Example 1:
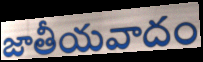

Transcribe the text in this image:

జాతీయవాదం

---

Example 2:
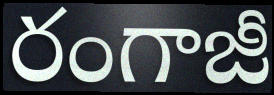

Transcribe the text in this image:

రంగాజీ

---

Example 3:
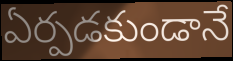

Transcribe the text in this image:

ఏర్పడకుండానే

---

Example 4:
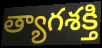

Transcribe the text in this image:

త్యాగశక్తి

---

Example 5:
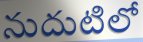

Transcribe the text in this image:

నుదుటిలో